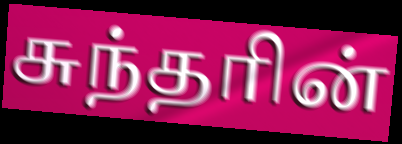
சுந்தரின்